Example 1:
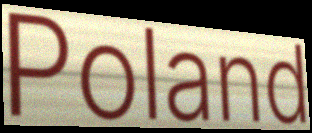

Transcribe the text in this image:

Poland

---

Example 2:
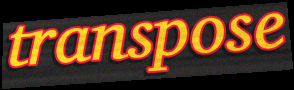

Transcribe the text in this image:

transpose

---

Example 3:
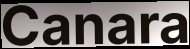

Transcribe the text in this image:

Canara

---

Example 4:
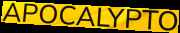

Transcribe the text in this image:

APOCALYPTO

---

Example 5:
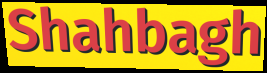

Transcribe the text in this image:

Shahbagh